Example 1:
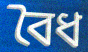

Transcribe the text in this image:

বৈধ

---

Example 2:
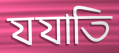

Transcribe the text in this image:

যযাতি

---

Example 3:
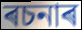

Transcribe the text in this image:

ৰচনাৰ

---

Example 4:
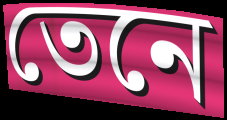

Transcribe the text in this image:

তেনে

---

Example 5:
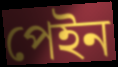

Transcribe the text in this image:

পেইন